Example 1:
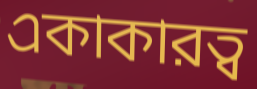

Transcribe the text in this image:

একাকারত্ব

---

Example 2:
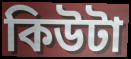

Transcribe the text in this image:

কিউটা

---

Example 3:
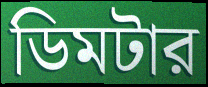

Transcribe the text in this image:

ডিমটার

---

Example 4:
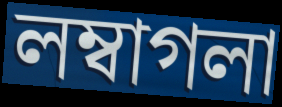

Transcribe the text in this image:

লম্বাগলা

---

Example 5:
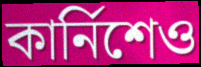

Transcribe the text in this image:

কার্নিশেও